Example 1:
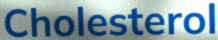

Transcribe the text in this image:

Cholesterol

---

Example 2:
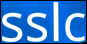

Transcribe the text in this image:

sslc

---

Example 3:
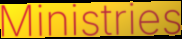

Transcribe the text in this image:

Ministries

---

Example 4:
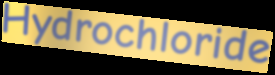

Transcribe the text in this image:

Hydrochloride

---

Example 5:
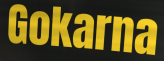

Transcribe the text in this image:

Gokarna